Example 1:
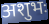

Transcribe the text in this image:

अशुभः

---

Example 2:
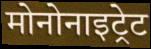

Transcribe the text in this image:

मोनोनाइट्रेट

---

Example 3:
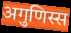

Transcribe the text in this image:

अगुणिस्स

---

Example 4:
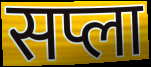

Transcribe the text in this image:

सप्ला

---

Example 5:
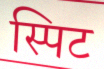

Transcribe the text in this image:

स्पिट